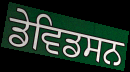
ਡੇਵਿਡਸਨ